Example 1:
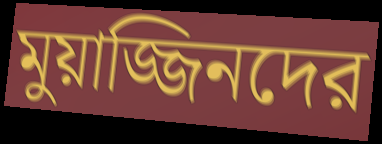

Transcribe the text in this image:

মুয়াজ্জিনদের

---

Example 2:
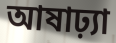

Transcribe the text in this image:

আষাঢ়্যা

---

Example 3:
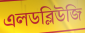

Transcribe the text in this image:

এলডব্লিউজি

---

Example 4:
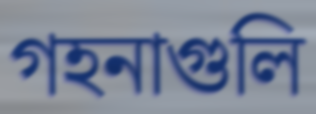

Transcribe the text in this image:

গহনাগুলি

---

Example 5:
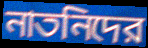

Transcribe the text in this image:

নাতনিদের